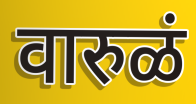
वारुळं